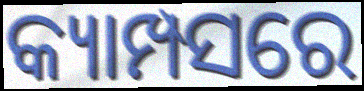
କ୍ୟାମ୍ପସରେ